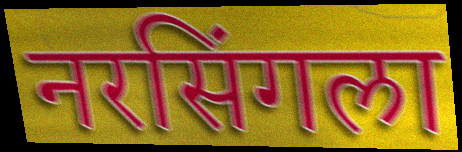
नरसिंगला